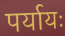
पर्यायः